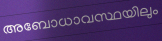
അബോധാവസ്ഥയിലും